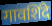
गावशिंदे